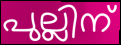
പുല്ലിന്